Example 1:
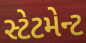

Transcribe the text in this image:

સ્ટેટમેન્ટ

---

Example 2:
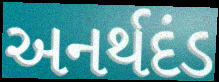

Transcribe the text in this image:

અનર્થદંડ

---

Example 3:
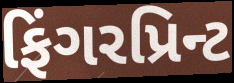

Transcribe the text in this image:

ફિંગરપ્રિન્ટ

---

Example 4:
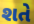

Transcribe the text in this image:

શતે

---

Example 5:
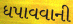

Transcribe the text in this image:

ધપાવવાની